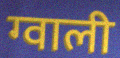
ग्वाली